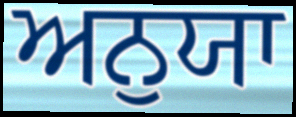
ਅਨੁਯਾ